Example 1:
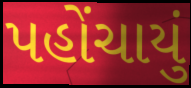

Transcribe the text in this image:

પહોંચાયું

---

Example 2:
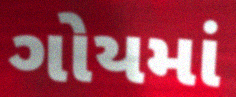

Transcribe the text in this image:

ગોયમાં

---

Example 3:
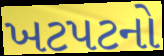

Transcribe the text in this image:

ખટપટનો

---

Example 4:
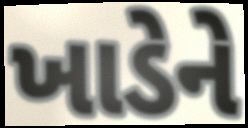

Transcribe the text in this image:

ખાડેને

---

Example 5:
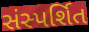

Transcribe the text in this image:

સંસ્પર્શિત